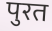
पुरत